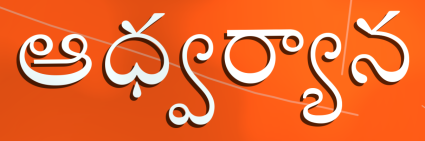
ఆధ్వర్యాన